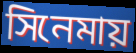
সিনেমায়